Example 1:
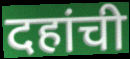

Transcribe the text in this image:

दहांची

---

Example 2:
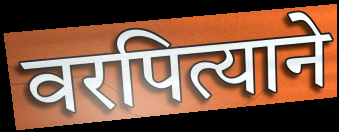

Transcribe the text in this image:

वरपित्याने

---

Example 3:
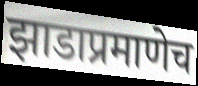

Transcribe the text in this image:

झाडाप्रमाणेच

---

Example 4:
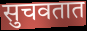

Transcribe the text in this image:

सुचवतात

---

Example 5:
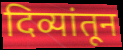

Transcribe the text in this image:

दिव्यांतून